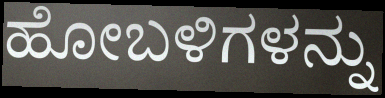
ಹೋಬಳಿಗಳನ್ನು